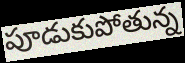
పూడుకుపోతున్న